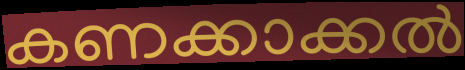
കണക്കാക്കൽ